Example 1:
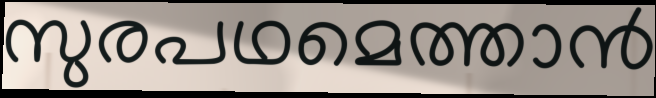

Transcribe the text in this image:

സുരപഥമെത്താൻ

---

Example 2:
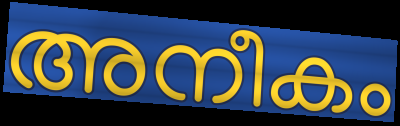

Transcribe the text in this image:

അനീകം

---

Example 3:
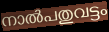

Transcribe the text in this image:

നാൽപതുവട്ടം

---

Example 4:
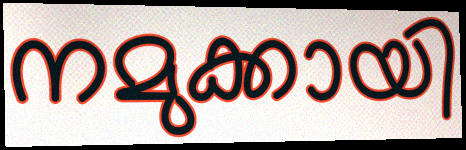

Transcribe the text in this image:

നമുക്കായി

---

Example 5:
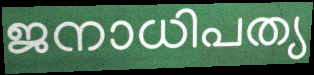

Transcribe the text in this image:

ജനാധിപത്യ